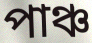
পাঞ্চ